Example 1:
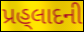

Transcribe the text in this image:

પ્રહ્‌લાદની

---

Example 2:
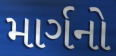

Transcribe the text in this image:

માર્ગનો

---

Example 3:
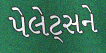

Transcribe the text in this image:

પેલેટ્સને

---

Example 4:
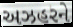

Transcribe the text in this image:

અઝહરને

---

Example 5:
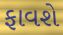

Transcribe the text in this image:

ફાવશે